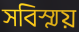
সবিস্ময়